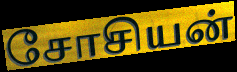
சோசியன்